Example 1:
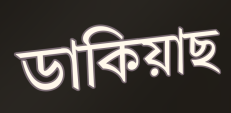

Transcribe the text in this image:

ডাকিয়াছ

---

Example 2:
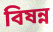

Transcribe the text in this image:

বিষন্ন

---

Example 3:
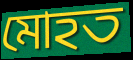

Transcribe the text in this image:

মোহত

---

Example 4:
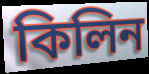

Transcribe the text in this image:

কিলিন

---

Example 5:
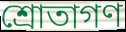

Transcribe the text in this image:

শ্রোতাগণ